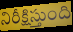
నిరీక్షిస్తుంది